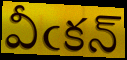
వీఁకన్